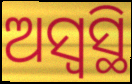
ଅସ୍ୱସ୍ଥି